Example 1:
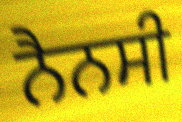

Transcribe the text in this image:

ਨੈਨਸੀ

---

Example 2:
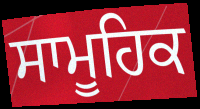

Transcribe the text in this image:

ਸਾਮੂਹਿਕ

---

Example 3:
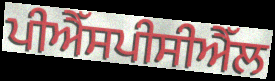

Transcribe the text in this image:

ਪੀਐੱਸਪੀਸੀਐੱਲ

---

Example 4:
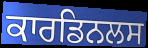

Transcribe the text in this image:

ਕਾਰਡਿਨਲਸ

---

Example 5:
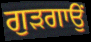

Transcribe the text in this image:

ਗੁੜਗਾਉਂ